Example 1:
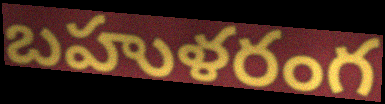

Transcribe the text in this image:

బహుళరంగ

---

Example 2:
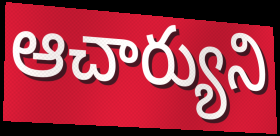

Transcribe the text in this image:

ఆచార్యుని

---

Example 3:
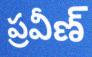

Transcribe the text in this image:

ప్రవీణ్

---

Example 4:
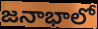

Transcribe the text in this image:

జనాభాలో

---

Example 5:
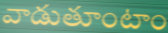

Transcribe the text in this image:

వాడుతూంటాం